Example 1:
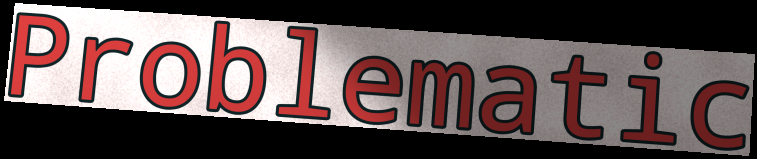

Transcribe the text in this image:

Problematic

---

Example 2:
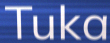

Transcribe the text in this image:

Tuka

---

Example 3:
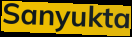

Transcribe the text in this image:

Sanyukta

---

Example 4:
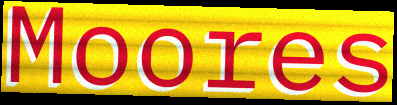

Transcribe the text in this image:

Moores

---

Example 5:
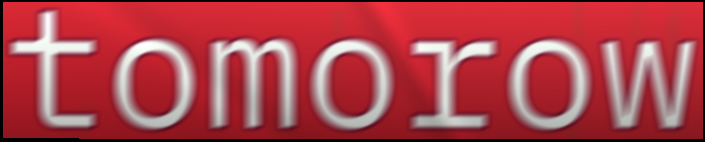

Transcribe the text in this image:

tomorow